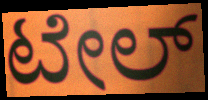
ಟೇಲ್